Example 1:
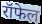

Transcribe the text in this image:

रॉफेल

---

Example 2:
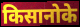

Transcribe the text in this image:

किसानोके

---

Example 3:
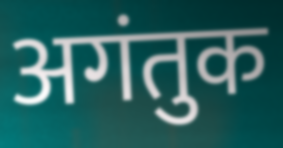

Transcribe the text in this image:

अगंतुक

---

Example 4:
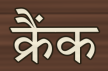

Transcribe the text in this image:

क्रैंक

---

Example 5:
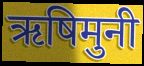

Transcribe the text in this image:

ऋषिमुनी